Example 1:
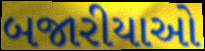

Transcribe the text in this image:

બજારીયાઓ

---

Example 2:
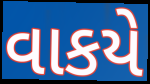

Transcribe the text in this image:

વાકયે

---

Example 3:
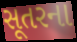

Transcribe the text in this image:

સૂતરના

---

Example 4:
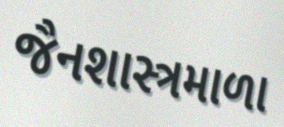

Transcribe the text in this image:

જૈનશાસ્ત્રમાળા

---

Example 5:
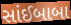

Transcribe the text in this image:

સાંઈબાબા